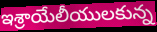
ఇశ్రాయేలీయులకున్న